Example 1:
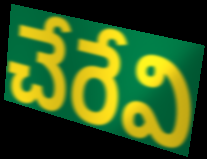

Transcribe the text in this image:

చేరేవి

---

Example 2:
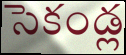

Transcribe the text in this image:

సెకండ్ల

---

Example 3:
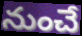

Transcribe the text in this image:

నుంచే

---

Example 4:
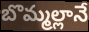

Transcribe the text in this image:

బొమ్మల్లానే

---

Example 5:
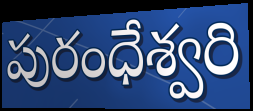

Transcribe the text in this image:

పురంధేశ్వరి